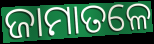
ଜାମାତଳେ